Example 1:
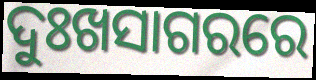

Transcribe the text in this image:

ଦୁଃଖସାଗରରେ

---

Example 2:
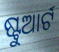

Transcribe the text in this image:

ଷ୍ଟୁଆର୍ଟ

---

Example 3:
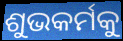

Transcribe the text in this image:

ଶୁଭକର୍ମକୁ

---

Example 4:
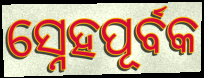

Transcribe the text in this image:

ସ୍ନେହପୂର୍ବକ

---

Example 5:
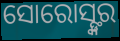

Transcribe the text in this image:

ସୋରୋସ୍ଙ୍କର